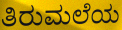
ತಿರುಮಲೆಯ